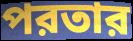
পরতার